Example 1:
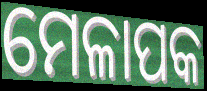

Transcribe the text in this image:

ମେଳାପକ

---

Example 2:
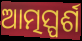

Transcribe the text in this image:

ଆତ୍ମସ୍ପର୍ଶ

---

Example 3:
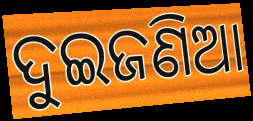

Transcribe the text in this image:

ଦୁଇଜଣିଆ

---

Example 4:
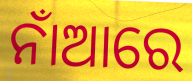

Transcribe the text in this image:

ନାଁଆରେ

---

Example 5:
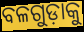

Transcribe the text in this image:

ବଳଗୁଡ଼ାକୁ